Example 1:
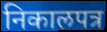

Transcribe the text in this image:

निकालपत्र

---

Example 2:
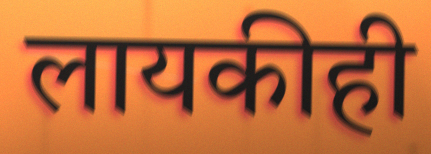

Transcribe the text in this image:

लायकीही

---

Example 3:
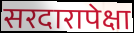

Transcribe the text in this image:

सरदारापेक्षा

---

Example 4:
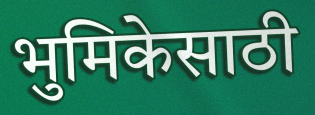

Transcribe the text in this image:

भुमिकेसाठी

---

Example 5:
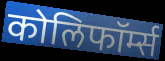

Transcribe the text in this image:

कोलिफॉर्म्स